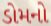
ડોમનો